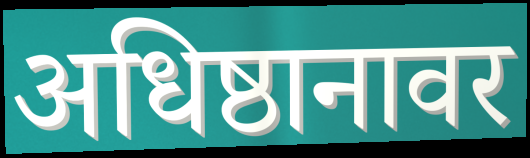
अधिष्ठानावर